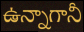
ఉన్నాగానీ